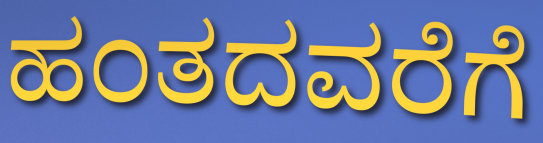
ಹಂತದವರೆಗೆ